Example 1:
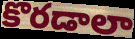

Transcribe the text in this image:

కొరడాలా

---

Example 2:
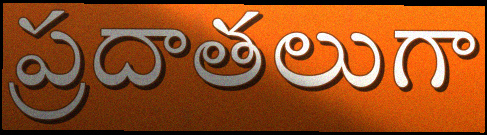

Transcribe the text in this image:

ప్రదాతలుగా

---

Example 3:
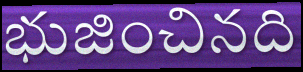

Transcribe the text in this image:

భుజించినది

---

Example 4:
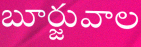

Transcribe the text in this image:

బూర్జువాల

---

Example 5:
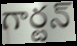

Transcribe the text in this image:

గార్టన్